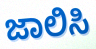
ಜಾಲಿಸಿ